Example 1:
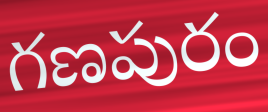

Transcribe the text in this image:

గణపురం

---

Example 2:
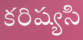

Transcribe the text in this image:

కరిష్యసి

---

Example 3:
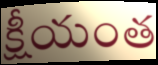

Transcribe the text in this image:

క్షీయంత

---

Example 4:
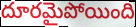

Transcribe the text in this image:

దూరమైపోయింది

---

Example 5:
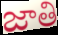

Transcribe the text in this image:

జాతి